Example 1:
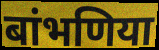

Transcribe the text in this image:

बांभणिया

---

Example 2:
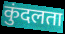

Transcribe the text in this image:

कुंदलता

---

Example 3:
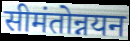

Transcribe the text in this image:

सीमंतोन्नयन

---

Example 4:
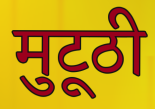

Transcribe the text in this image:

मुटूठी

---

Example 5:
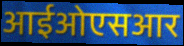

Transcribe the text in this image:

आईओएसआर